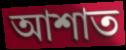
আশাত